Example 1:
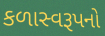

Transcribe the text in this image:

કળાસ્વરૂપનો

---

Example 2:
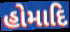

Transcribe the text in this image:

હોમાદિ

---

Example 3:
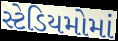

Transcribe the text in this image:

સ્ટેડિયમોમાં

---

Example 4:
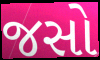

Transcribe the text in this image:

જસો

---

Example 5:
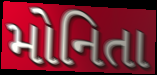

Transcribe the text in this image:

મોનિતા